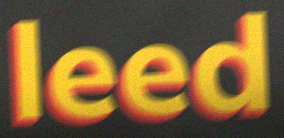
leed